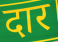
दार